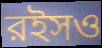
রইসও